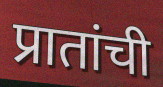
प्रातांची